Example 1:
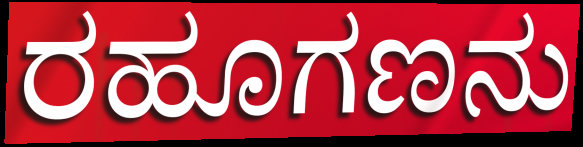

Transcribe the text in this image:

ರಹೂಗಣನು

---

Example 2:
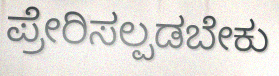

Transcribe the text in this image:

ಪ್ರೇರಿಸಲ್ಪಡಬೇಕು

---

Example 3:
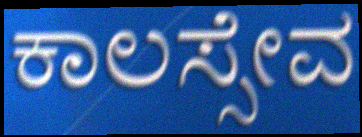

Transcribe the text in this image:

ಕಾಲಸ್ಸೇವ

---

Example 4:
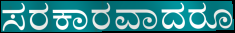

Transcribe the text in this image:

ಸರಕಾರವಾದರೂ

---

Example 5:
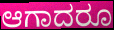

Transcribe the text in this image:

ಆಗಾದರೂ